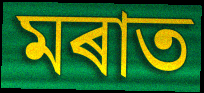
মৰাত